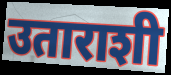
उताराशी